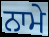
ਨਾਮੇ